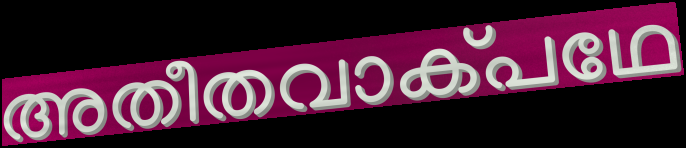
അതീതവാക്പഥേ